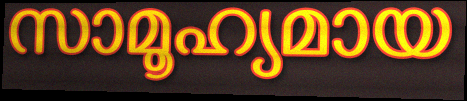
സാമൂഹ്യമായ